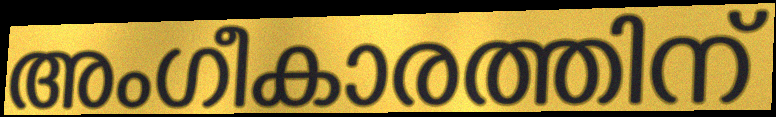
അംഗീകാരത്തിന്